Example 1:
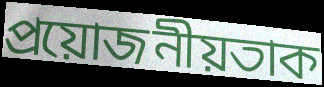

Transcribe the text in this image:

প্ৰয়োজনীয়তাক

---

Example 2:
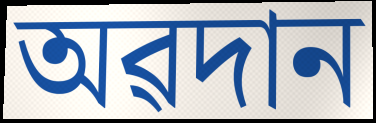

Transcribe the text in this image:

অৱদান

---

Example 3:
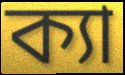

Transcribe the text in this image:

ক্যা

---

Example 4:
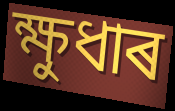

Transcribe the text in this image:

ক্ষুধাৰ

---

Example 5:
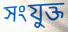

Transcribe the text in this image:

সংযুক্ত